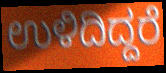
ಉಳಿದಿದ್ದರೆ